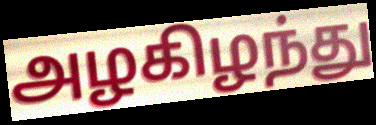
அழகிழந்து